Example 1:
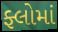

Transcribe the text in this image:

ફ્લોમાં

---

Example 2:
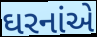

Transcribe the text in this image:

ઘરનાંએ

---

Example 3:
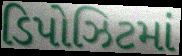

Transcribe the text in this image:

ડિપોઝિટમાં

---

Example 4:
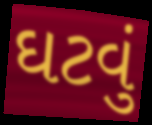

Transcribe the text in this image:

ઘટવું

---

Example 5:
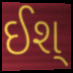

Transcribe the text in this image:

ઈશ્